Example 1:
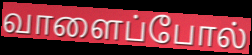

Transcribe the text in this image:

வாளைப்போல்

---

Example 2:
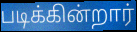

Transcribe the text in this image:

படிக்கின்றார்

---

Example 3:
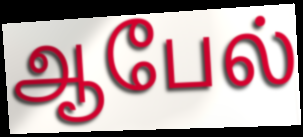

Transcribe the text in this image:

ஆபேல்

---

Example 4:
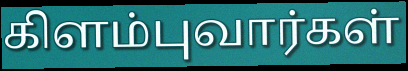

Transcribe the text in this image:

கிளம்புவார்கள்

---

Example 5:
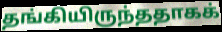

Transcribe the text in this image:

தங்கியிருந்ததாகக்